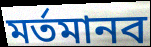
মর্তমানব